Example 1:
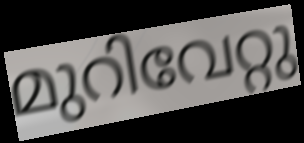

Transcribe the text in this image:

മുറിവേറ്റു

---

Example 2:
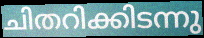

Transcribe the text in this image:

ചിതറിക്കിടന്നു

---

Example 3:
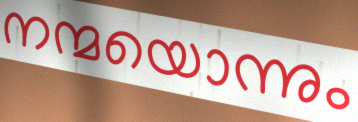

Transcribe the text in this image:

നന്മയൊന്നും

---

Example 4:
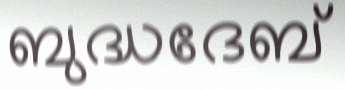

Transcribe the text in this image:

ബുദ്ധദേബ്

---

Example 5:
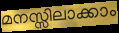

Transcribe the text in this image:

മനസ്സിലാക്കാം